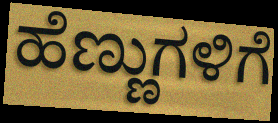
ಹೆಣ್ಣುಗಳಿಗೆ